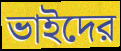
ভাইদের